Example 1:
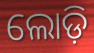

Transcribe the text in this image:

ଲୋଡ଼ି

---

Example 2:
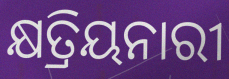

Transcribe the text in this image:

କ୍ଷତ୍ରିୟନାରୀ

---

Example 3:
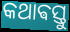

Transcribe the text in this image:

କଥାଵସ୍ତୁ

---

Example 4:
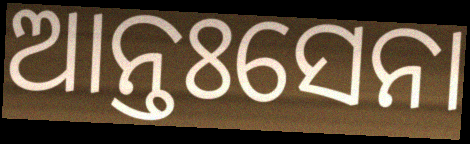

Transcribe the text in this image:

ଆନ୍ତଃସେନା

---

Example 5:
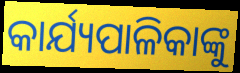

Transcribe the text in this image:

କାର୍ଯ୍ୟପାଳିକାଙ୍କୁ